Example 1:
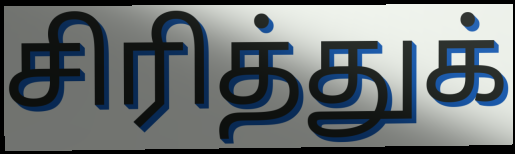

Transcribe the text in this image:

சிரித்துக்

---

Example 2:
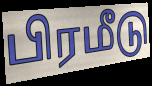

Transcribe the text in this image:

பிரமீடு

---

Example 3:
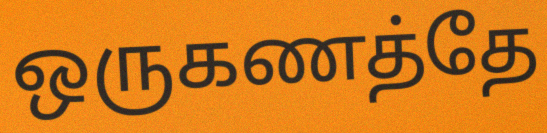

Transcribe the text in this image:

ஒருகணத்தே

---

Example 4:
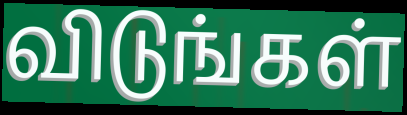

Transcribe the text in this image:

விடுங்கள்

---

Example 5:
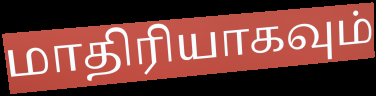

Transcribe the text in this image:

மாதிரியாகவும்